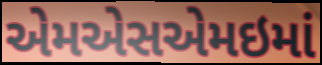
એમએસએમઇમાં